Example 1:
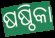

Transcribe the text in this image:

ଷଷ୍ଠିକା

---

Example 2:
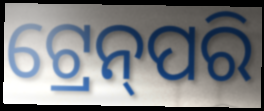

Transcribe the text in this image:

ଟ୍ରେନ୍‌ପରି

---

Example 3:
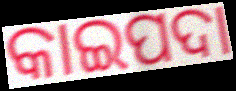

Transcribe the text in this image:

କାଇପଦା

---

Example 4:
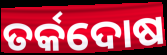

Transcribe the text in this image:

ତର୍କଦୋଷ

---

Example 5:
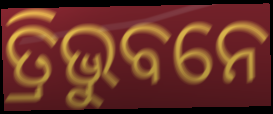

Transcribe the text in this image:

ତ୍ରିଭୁବନେ